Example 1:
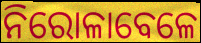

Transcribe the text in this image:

ନିରୋଳାବେଳେ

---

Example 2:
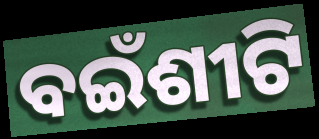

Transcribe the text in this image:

ବଇଁଶୀଟି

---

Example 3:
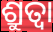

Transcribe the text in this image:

ଶ୍ରୁତ୍ଵା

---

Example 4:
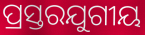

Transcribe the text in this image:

ପ୍ରସ୍ତରଯୁଗୀୟ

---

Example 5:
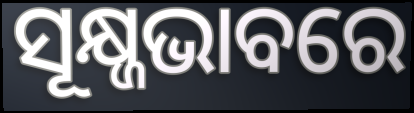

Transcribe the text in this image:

ସୂକ୍ଷ୍ଜଭାବରେ